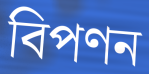
বিপণন